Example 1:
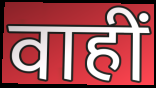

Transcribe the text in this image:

वाहीं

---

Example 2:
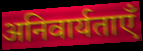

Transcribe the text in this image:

अनिवार्यताएँ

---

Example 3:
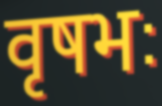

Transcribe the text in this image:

वृषभः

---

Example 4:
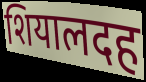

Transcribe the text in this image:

शियालदह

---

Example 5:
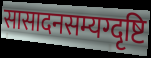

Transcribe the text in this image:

सासादनसम्यग्दृष्टि